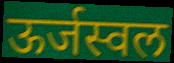
ऊर्जस्वल